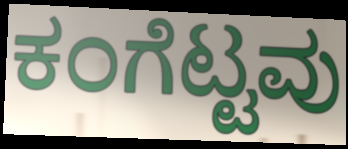
ಕಂಗೆಟ್ಟವು